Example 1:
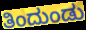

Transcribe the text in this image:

ತಿಂದುಂಡು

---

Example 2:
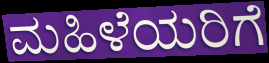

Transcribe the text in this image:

ಮಹಿಳೆಯರಿಗೆ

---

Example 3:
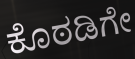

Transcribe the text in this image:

ಕೊಠಡಿಗೇ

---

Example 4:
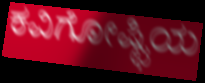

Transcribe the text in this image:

ಕವಿಗೋಷ್ಟಿಯ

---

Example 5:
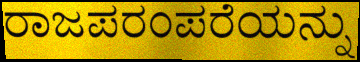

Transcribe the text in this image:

ರಾಜಪರಂಪರೆಯನ್ನು